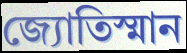
জ্যোতিস্মান